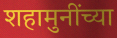
शहामुनींच्या